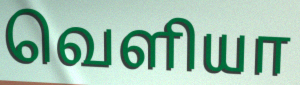
வெளியா